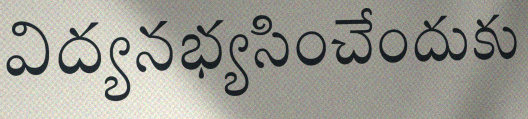
విద్యనభ్యసించేందుకు